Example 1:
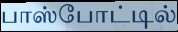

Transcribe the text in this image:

பாஸ்போட்டில்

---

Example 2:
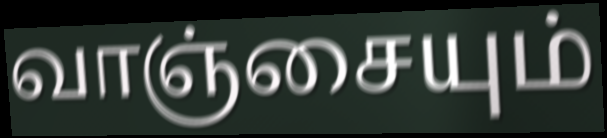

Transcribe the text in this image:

வாஞ்சையும்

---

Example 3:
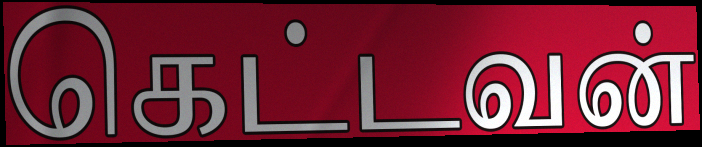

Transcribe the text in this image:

கெட்டவன்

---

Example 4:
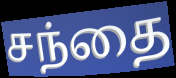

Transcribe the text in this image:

சந்தை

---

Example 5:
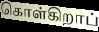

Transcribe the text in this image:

கொள்கிறாப்